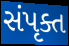
સંપૃક્ત